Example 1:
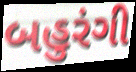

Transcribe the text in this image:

બહુરંગી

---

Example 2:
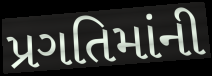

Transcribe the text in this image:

પ્રગતિમાંની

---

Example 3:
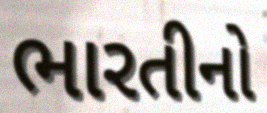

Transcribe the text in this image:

ભારતીનો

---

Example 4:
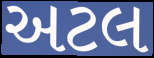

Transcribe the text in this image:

અટલ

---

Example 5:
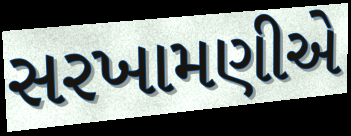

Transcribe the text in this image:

સરખામણીએ